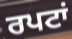
ਰਪਟਾਂ